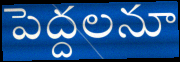
పెద్దలనూ